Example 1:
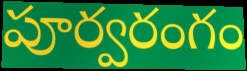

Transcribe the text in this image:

పూర్వరంగం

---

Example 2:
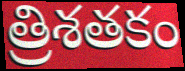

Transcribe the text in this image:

త్రిశతకం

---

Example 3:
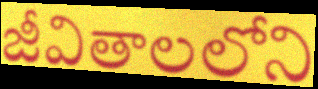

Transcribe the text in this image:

జీవితాలలోని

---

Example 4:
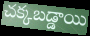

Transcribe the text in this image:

చక్కబడ్డాయి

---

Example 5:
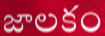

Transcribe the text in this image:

జాలకం